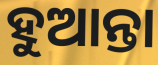
ହୁଆନ୍ତା